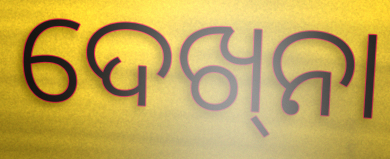
ଦେଖ୍‌ନା